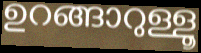
ഉറങ്ങാറുള്ളൂ